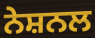
ਨੇਸ਼ਨਲ